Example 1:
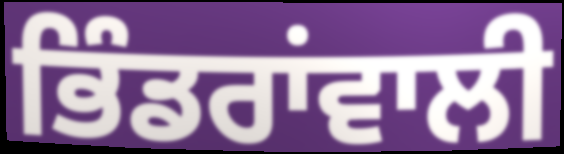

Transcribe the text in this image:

ਭਿੰਡਰਾਂਵਾਲੀ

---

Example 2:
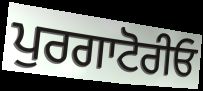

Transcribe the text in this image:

ਪੁਰਗਾਟੋਰੀਓ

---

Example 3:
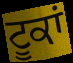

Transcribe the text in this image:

ਟੂਕਾਂ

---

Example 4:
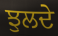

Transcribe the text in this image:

ਝੁਲਦੇ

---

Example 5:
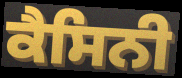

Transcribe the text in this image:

ਕੈਸਿਨੀ